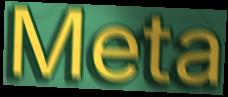
Meta